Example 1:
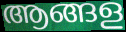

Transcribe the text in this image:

ആങ്ങള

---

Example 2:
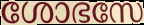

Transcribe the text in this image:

ശോഭസേ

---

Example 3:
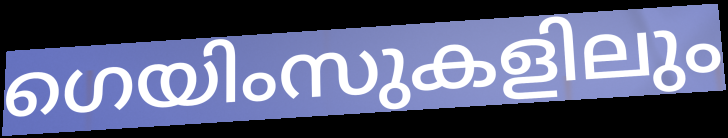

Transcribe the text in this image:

ഗെയിംസുകളിലും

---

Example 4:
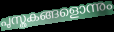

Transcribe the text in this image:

പുസ്തകങ്ങളൊന്നും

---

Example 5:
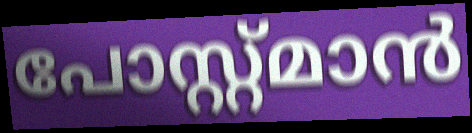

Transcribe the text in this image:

പോസ്റ്റ്മാൻ